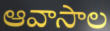
ఆవాసాల